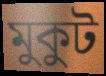
মুকুট